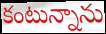
కంటున్నాను